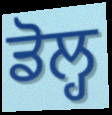
ਡੋਲ੍ਹ